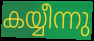
കയ്യീന്നു